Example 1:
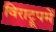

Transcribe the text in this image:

विराट्रूपमें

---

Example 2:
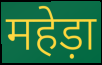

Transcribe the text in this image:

महेड़ा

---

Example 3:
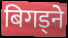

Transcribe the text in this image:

बिगड्ने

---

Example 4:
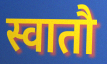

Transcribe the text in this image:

स्वातौ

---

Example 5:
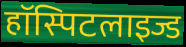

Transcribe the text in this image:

हॉस्पिटलाइज्ड